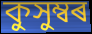
কুসুম্বৰ